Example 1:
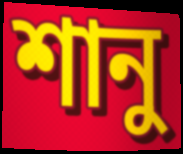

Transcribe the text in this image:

শানু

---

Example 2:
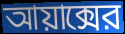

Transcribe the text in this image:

আয়াক্সের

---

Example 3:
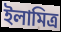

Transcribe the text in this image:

ইলামিত্র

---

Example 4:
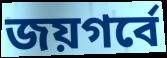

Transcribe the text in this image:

জয়গর্বে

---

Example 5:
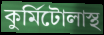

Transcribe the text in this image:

কুর্মিটোলাস্থ